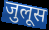
जुलूस